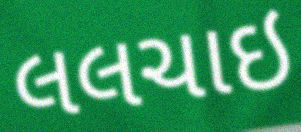
લલચાઇ